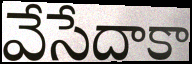
వేసేదాకా